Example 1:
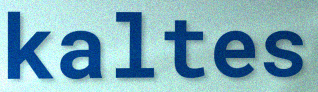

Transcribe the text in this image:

kaltes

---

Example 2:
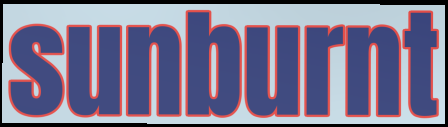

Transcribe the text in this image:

sunburnt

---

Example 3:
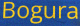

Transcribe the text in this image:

Bogura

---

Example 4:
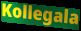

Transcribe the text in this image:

Kollegala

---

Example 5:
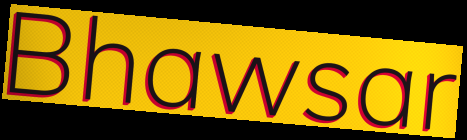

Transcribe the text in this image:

Bhawsar